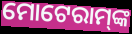
ମୋଟେରାମ୍‌ଙ୍କ